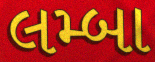
લમ્બા